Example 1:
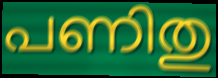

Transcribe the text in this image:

പണിതു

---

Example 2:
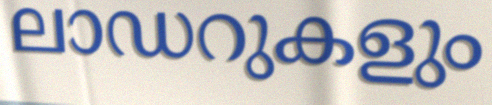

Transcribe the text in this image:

ലാഡറുകളും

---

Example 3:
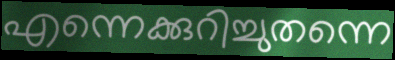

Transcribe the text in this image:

എന്നെക്കുറിച്ചുതന്നെ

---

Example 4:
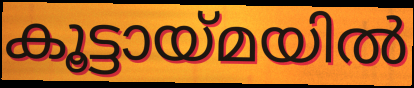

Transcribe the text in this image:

കൂട്ടായ്മയിൽ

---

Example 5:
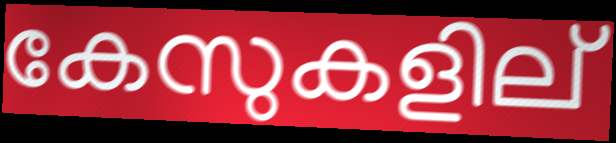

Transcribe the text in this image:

കേസുകളില്